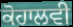
ਕੋਹਾਲਵੀ